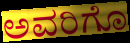
ಅವರಿಗೊ